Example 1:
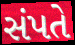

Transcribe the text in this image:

સંપતે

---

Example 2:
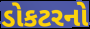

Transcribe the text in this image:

ડોકટરનો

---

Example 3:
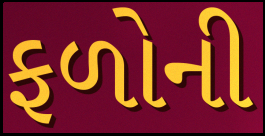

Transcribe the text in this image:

ફળોની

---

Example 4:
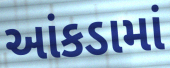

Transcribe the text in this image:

આંકડામાં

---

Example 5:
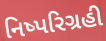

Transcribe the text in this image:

નિષ્પરિગ્રહી